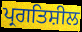
ਪ੍ਰਗਤਿਸ਼ੀਲ